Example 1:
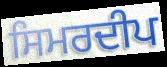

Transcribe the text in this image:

ਸਿਮਰਦੀਪ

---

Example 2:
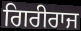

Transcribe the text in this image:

ਗਿਰੀਰਾਜ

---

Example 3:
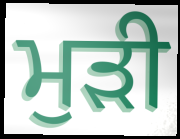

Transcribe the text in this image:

ਮੁੜੀ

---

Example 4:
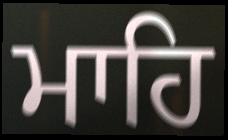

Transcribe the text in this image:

ਮਾਹਿ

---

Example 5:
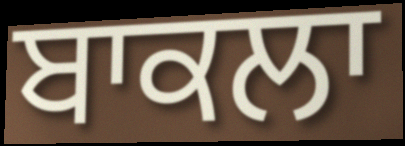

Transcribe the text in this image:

ਬਾਕਲਾ